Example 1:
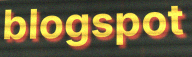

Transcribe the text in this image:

blogspot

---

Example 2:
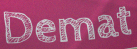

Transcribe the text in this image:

Demat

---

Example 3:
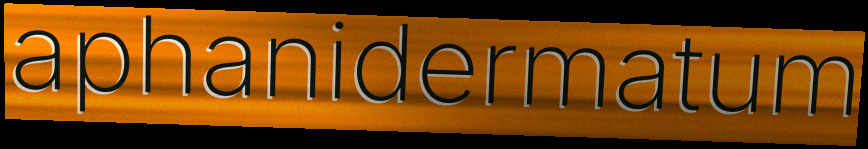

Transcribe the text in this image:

aphanidermatum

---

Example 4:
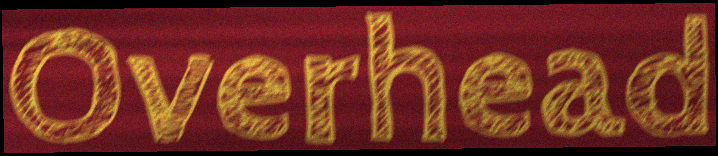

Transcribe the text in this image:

Overhead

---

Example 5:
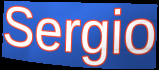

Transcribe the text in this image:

Sergio